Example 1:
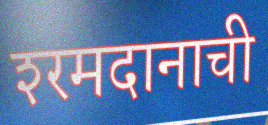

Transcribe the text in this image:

श्रमदानाची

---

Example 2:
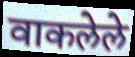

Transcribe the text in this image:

वाकलेले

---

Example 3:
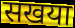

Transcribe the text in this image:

सखया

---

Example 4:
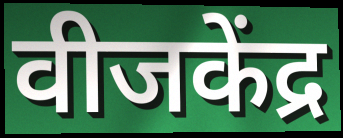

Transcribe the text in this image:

वीजकेंद्र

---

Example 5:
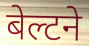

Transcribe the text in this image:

बेल्टने